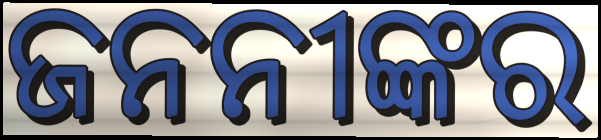
ଜନନୀଙ୍କର